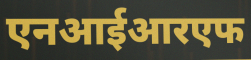
एनआईआरएफ